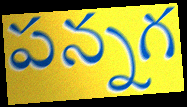
పన్నగ